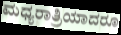
ಮಧ್ಯರಾತ್ರಿಯಾದರೂ